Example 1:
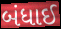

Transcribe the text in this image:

બંધાઈ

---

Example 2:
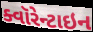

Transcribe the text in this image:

ક્વૉરેન્ટાઇન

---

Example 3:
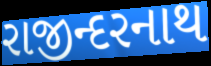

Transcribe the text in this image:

રાજીન્દરનાથ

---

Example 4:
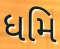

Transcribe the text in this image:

ધમિ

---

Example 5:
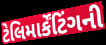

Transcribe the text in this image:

ટેલિમાર્કેંટિંગની